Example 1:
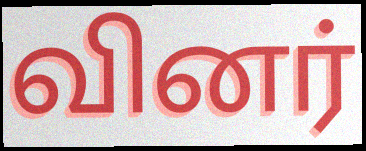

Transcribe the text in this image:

வினர்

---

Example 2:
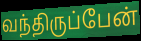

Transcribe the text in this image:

வந்திருப்பேன்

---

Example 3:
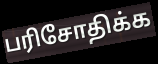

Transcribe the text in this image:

பரிசோதிக்க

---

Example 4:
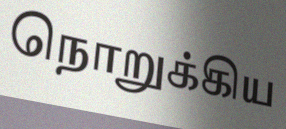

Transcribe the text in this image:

நொறுக்கிய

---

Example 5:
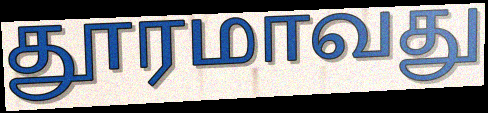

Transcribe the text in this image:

தூரமாவது